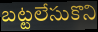
బట్టలేసుకొని